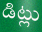
డిట్లు